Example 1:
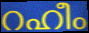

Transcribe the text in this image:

റഹീം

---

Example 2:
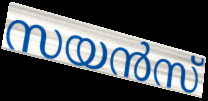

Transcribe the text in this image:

സയൻസ്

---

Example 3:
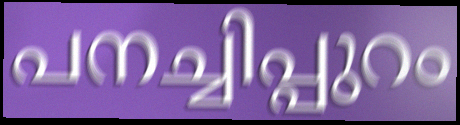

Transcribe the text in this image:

പനച്ചിപ്പുറം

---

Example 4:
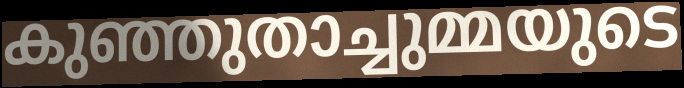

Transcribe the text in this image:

കുഞ്ഞുതാച്ചുമ്മയുടെ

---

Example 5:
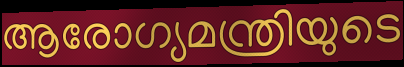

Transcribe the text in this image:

ആരോഗ്യമന്ത്രിയുടെ